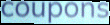
coupons